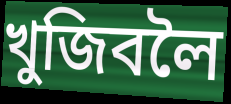
খুজিবলৈ